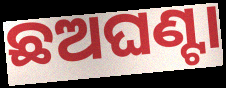
ଛଅଘଣ୍ଟା